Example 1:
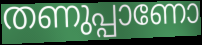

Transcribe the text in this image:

തണുപ്പാണോ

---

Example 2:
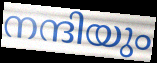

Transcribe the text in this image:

നന്ദിയും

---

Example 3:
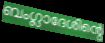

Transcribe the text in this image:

ബംഗ്ലാദേശിന്റെ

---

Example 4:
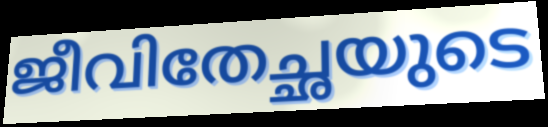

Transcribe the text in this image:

ജീവിതേച്ഛയുടെ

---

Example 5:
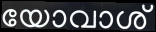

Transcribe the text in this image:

യോവാശ്